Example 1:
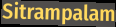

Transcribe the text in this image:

Sitrampalam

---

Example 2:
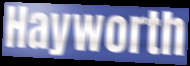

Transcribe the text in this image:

Hayworth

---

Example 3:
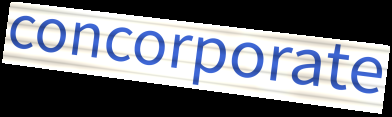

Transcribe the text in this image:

concorporate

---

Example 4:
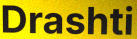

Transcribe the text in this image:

Drashti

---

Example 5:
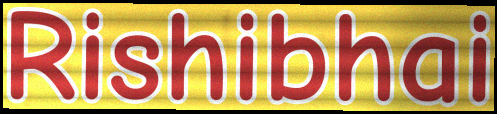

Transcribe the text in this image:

Rishibhai